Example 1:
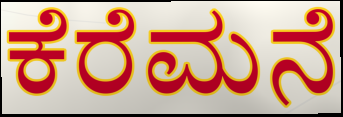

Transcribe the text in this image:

ಕೆರೆಮನೆ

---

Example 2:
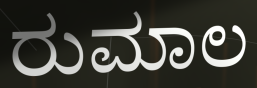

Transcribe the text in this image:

ರುಮಾಲ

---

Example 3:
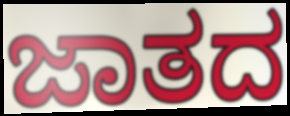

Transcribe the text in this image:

ಜಾತದ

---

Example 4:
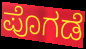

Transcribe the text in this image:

ಪೊಗಡೆ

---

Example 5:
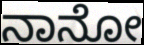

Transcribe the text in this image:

ನಾನೋ